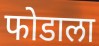
फोडाला